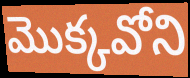
మొక్కవోని